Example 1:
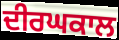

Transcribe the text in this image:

ਦੀਰਘਕਾਲ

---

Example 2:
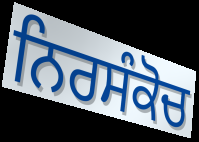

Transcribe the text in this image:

ਨਿਰਸੰਕੋਚ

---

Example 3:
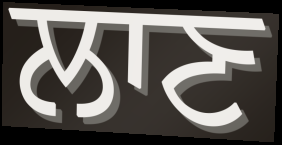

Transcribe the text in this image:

ਲਾਣ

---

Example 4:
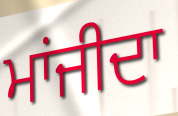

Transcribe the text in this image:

ਮਾਂਜੀਦਾ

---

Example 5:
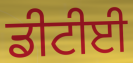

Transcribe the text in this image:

ਡੀਟੀਈ